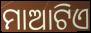
ମାଆଟିଏ